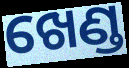
ଖେଣ୍ଡ